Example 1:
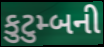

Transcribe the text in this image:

કુટુમ્બની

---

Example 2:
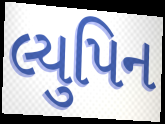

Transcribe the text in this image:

લ્યુપિન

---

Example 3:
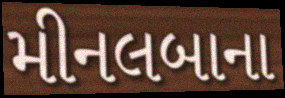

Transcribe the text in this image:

મીનલબાના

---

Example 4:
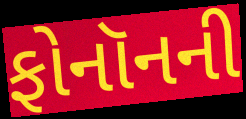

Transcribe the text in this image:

ફોનૉનની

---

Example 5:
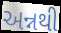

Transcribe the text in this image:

અન્નથી